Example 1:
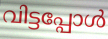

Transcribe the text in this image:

വിട്ടപ്പോൾ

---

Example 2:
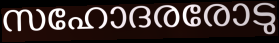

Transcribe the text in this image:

സഹോദരരോടു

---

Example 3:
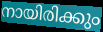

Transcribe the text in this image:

നായിരിക്കും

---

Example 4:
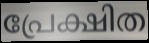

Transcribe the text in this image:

പ്രേക്ഷിത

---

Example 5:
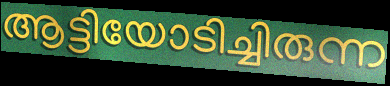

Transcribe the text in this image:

ആട്ടിയോടിച്ചിരുന്ന